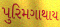
પુરિમગાથાય